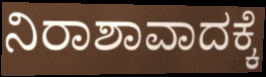
ನಿರಾಶಾವಾದಕ್ಕೆ